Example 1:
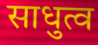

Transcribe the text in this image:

साधुत्व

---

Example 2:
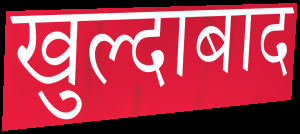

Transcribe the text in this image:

खुल्दाबाद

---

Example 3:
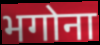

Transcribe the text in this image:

भगोना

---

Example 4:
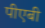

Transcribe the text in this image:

पीएबी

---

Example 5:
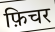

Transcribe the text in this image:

फ़िचर